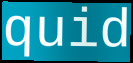
quid